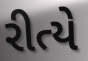
રીત્યે